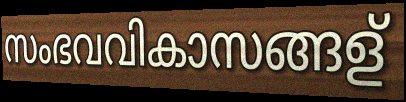
സംഭവവികാസങ്ങള്